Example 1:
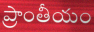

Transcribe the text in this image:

ప్రాంతీయం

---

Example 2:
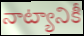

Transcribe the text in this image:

నాట్యానికీ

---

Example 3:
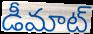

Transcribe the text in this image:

డీమాట్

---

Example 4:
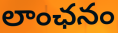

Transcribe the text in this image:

లాంఛనం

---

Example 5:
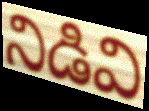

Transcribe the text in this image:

నిడివి